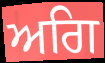
ਅਗਿ